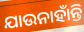
ଯାଉନାହାଁନ୍ତି